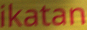
ikatan